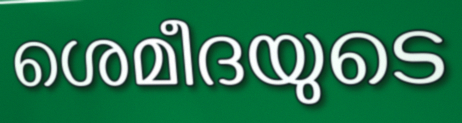
ശെമീദയുടെ